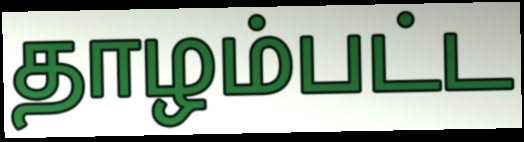
தாழம்பட்ட